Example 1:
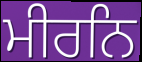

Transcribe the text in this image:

ਮੀਰਨਿ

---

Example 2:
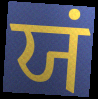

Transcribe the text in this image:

ਯਂ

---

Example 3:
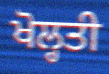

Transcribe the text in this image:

ਖੋਲ੍ਹਤੀ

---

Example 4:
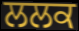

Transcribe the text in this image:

ਲਲਕ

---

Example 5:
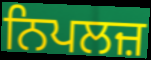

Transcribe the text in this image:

ਨਿਪਲਜ਼